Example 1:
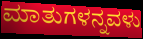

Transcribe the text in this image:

ಮಾತುಗಳನ್ನವಳು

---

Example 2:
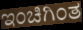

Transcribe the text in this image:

ಇಂಚಿಗಿಂತ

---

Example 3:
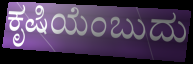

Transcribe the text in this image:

ಕೃಷಿಯೆಂಬುದು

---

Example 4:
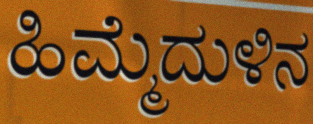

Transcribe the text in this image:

ಹಿಮ್ಮೆದುಳಿನ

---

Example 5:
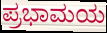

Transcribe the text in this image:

ಪ್ರಭಾಮಯ